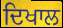
ਦਿਖਾਲ